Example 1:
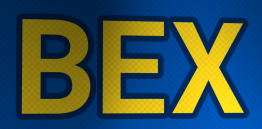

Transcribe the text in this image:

BEX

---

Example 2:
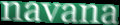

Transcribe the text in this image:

navana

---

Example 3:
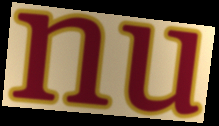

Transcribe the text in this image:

nu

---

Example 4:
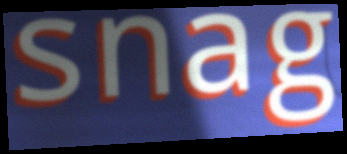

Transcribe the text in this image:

snag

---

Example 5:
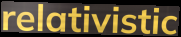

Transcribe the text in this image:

relativistic